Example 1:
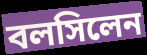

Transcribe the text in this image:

বলসিলেন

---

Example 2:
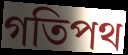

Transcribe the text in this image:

গতিপথ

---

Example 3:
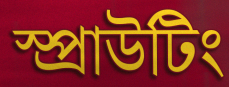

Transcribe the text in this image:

স্প্রাউটিং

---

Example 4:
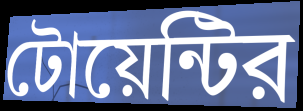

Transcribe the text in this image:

টোয়েন্টির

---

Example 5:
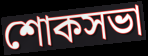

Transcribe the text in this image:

শোকসভা